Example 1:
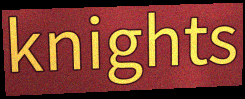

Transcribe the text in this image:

knights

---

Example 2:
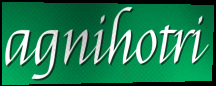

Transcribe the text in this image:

agnihotri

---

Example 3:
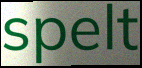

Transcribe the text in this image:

spelt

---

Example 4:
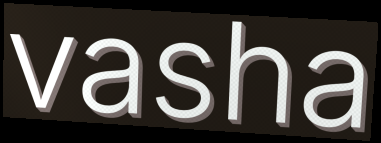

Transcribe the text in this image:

vasha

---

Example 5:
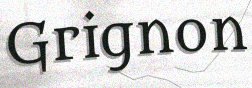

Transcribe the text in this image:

Grignon